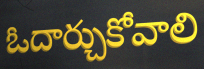
ఓదార్చుకోవాలి